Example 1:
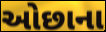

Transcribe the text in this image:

ઓછાના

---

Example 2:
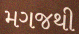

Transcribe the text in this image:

મગજથી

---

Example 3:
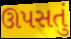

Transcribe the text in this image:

ઊપસતું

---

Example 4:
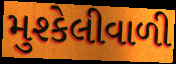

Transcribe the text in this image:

મુશ્કેલીવાળી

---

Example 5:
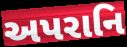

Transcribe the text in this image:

અપરાનિ